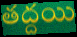
తద్దయి